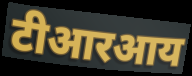
टीआरआय